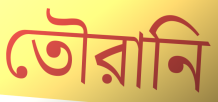
তৌরানি